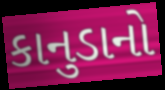
કાનુડાનો